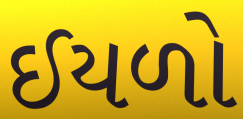
ઈયળો